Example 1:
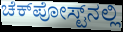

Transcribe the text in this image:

ಚೆಕ್‌ಪೋಸ್ಟ್‌ನಲ್ಲಿ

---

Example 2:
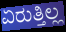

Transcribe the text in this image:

ಏರುತ್ತಿಲ್ಲ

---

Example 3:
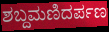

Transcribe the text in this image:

ಶಬ್ದಮಣಿದರ್ಪಣ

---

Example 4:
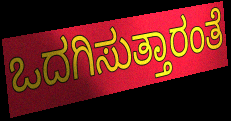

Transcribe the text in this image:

ಒದಗಿಸುತ್ತಾರಂತೆ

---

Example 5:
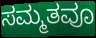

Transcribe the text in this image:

ಸಮ್ಮತವೂ